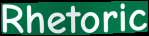
Rhetoric